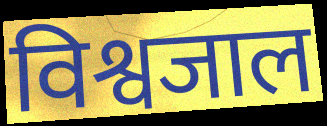
विश्वजाल